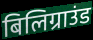
बिलिग्राउंड